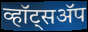
व्हॉट्सॲप